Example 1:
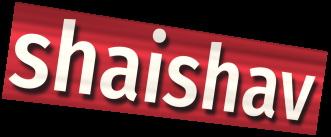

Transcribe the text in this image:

shaishav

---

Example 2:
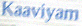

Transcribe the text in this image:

Kaaviyam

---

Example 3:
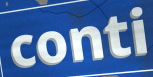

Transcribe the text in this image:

conti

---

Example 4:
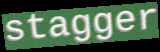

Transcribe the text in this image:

stagger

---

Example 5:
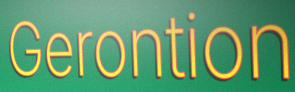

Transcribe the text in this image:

Gerontion